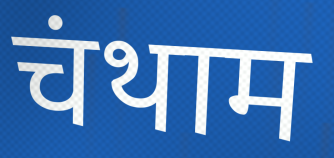
चंथाम